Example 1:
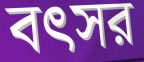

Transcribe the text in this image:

বৎসর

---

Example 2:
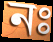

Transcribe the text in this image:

নঃ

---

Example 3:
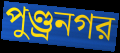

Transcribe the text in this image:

পুণ্ড্রনগর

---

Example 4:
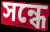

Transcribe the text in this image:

সন্ধে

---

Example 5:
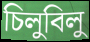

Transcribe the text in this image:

চিলুবিলু